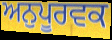
ਅਨੁਪੂਰਵਕ